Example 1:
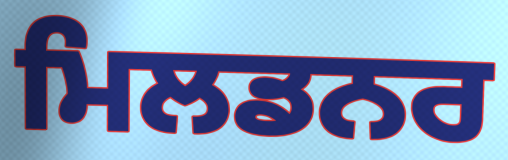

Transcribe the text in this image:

ਮਿਲਡਨਰ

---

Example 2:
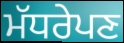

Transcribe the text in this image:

ਮੱਧਰੇਪਣ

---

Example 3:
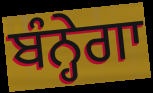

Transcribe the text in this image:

ਬੰਨ੍ਹੇਗਾ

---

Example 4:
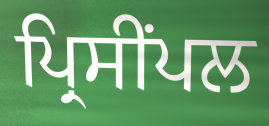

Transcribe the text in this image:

ਪ੍ਰਿਸੀਂਪਲ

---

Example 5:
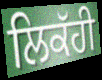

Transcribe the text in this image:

ਲਿਕੱਹੀ